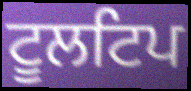
ਟੂਲਟਿਪ